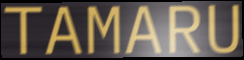
TAMARU